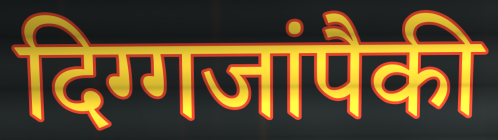
दिग्गजांपैकी